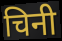
चिनी